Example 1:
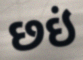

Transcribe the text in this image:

છઇં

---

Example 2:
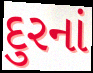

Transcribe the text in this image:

દુરનાં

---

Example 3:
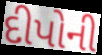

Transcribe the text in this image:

દીપોની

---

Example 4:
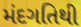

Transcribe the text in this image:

મંદગતિથી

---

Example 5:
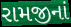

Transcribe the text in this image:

રામજીનાં